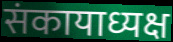
संकायाध्यक्ष